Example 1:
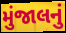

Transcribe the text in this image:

મુંજાલનું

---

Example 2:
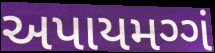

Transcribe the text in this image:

અપાયમગ્ગં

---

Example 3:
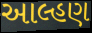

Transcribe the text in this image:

આલ્હણ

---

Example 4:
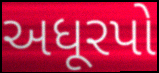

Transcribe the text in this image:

અધૂરપો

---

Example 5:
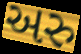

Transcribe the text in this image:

અરુ